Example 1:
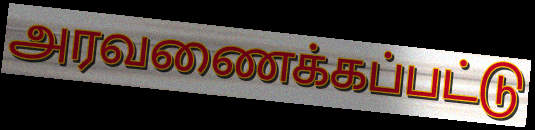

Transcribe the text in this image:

அரவணைக்கப்பட்டு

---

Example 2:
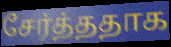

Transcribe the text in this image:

சேர்த்ததாக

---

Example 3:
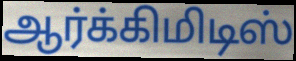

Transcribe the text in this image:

ஆர்க்கிமிடிஸ்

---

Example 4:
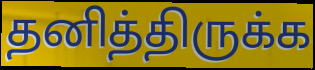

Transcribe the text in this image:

தனித்திருக்க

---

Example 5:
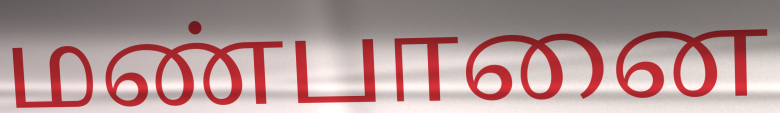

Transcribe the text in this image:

மண்பானை